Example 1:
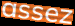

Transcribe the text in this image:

assez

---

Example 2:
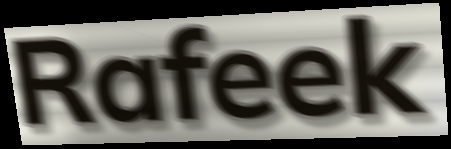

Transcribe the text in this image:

Rafeek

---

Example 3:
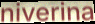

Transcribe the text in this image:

niverina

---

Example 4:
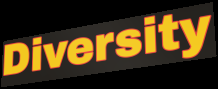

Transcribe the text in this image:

Diversity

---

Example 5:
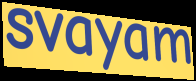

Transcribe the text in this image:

svayam